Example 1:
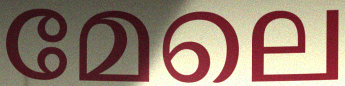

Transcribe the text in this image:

മേലെ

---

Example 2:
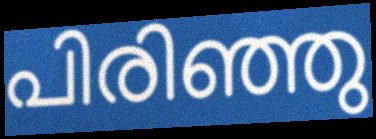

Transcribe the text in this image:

പിരിഞ്ഞു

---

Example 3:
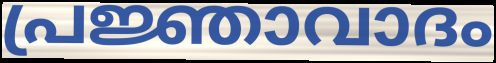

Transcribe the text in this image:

പ്രജ്ഞാവാദം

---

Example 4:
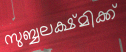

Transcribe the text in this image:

സുബ്ബലക്ഷ്മിക്ക്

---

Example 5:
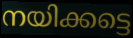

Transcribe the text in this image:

നയിക്കട്ടെ